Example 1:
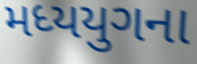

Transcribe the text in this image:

મધ્યયુગના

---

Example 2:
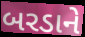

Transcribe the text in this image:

બરડાને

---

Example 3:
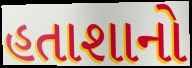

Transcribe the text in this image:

હતાશાનો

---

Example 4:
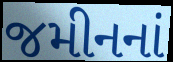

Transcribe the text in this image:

જમીનનાં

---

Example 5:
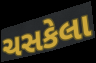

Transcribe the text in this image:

ચસકેલા